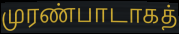
முரண்பாடாகத்